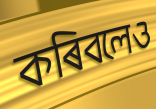
কৰিবলেও